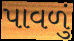
પાવળું